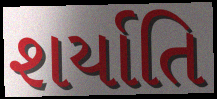
શર્યાતિ